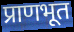
प्राणभूत